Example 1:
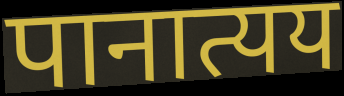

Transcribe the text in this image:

पानात्यय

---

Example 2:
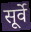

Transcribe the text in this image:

सूर्वे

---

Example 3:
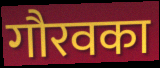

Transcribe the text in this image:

गौरवका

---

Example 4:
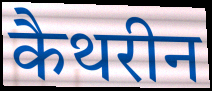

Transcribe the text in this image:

कैथरीन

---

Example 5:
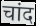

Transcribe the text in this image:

चांद